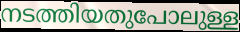
നടത്തിയതുപോലുള്ള